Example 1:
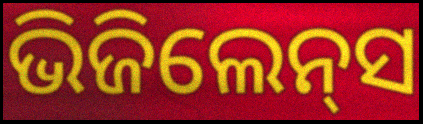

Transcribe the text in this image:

ଭିଜିଲେନ୍‌ସ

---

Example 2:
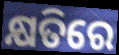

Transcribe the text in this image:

କ୍ଷତିରେ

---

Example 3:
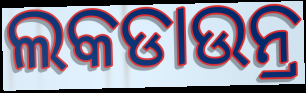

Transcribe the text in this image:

ଲକଡାଉନ୍ର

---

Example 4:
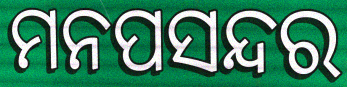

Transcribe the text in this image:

ମନପସନ୍ଦର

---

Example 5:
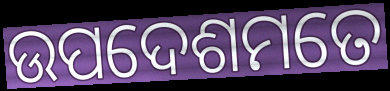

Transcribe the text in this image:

ଉପଦେଶମତେ